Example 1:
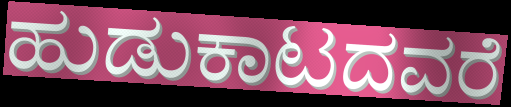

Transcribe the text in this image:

ಹುಡುಕಾಟದವರೆ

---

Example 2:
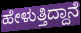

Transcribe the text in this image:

ಹೇಳುತ್ತಿದ್ದಾನೆ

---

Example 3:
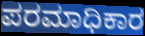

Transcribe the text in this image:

ಪರಮಾಧಿಕಾರ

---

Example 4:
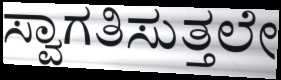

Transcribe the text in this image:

ಸ್ವಾಗತಿಸುತ್ತಲೇ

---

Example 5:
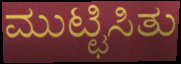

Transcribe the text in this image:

ಮುಟ್ಟಿಸಿತು